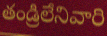
తండ్రిలేనివారి